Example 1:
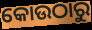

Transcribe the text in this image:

କୋଉଠାରୁ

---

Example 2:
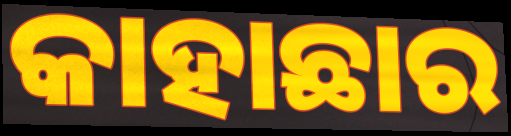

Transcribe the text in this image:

କାହାଛାର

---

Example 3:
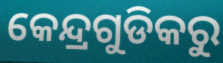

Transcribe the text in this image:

କେନ୍ଦ୍ରଗୁଡିକରୁ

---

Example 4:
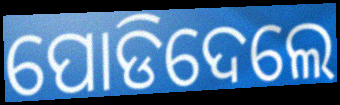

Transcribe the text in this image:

ପୋଡିଦେଲେ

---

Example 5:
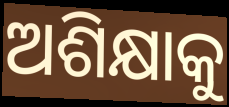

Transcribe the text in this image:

ଅଶିକ୍ଷାକୁ